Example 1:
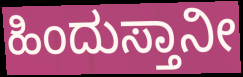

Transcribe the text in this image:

ಹಿಂದುಸ್ತಾನೀ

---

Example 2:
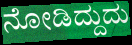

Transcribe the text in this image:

ನೋಡಿದ್ದುದು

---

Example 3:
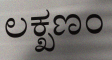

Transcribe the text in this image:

ಲಕ್ಖಣಂ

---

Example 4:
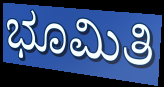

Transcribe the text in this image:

ಭೂಮಿತಿ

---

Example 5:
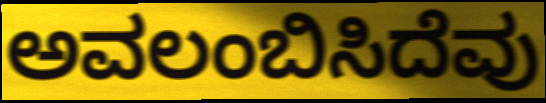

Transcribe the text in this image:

ಅವಲಂಬಿಸಿದೆವು